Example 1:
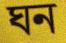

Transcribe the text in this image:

ঘন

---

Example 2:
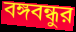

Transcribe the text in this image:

বঙ্গবন্ধুর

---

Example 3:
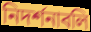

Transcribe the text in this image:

নিদর্শনাবলি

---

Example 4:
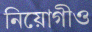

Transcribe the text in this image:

নিয়োগীও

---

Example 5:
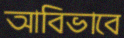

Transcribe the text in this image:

আবিভাবে